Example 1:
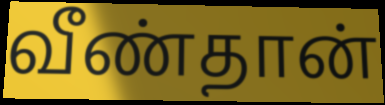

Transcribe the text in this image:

வீண்தான்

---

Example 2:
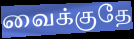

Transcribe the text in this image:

வைக்குதே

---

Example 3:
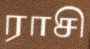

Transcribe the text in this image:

ராசி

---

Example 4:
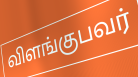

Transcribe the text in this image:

விளங்குபவர்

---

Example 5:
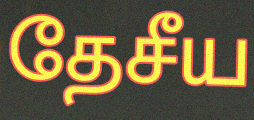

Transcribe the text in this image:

தேசீய